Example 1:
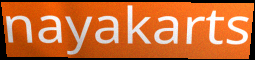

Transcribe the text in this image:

nayakarts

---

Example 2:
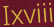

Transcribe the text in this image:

Ixviii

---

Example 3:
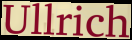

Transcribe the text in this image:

Ullrich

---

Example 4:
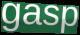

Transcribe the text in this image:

gasp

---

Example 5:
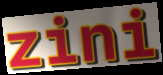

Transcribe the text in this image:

zini